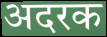
अदरक